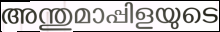
അന്തുമാപ്പിളയുടെ